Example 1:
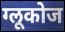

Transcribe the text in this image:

ग्लूकोज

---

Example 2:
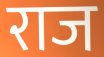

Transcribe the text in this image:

राज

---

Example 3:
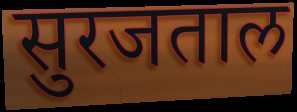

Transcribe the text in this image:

सुरजताल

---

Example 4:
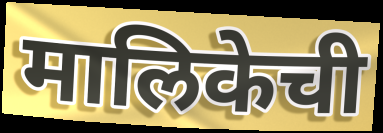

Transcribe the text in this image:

मालिकेची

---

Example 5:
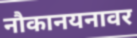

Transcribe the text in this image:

नौकानयनावर